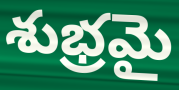
శుభ్రమై